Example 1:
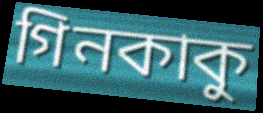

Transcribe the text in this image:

গিনকাকু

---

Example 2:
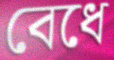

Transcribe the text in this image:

বেধে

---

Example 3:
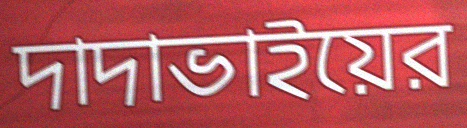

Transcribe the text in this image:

দাদাভাইয়ের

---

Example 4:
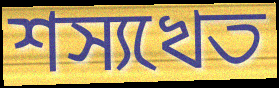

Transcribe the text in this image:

শস্যখেত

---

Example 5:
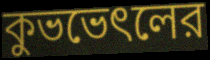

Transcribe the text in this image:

কুভভেৎলের